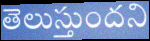
తెలుస్తుందని